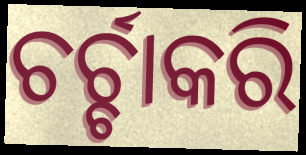
ଚର୍ଚ୍ଚାକରି